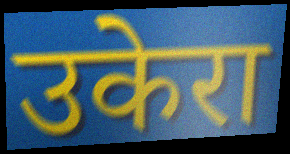
उकेरा